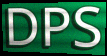
DPS